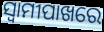
ସ୍ୱାମୀପାଖରେ